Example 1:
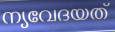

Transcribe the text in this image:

ന്യവേദയത്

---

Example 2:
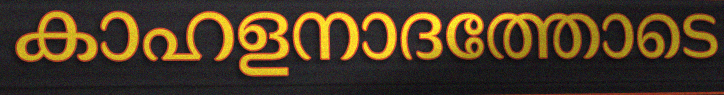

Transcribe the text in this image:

കാഹളനാദത്തോടെ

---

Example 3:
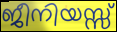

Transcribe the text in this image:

ജീനിയസ്സ്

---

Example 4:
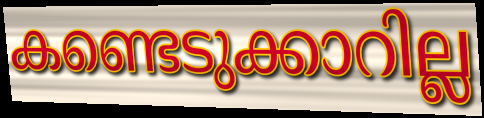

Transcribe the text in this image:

കണ്ടെടുക്കാറില്ല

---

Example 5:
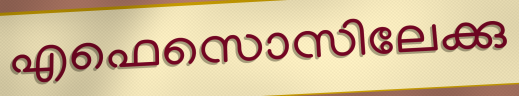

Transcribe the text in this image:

എഫെസൊസിലേക്കു